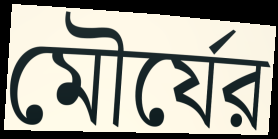
মৌর্যের